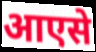
आएसे